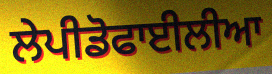
ਲੇਪੀਡੋਫਾਈਲੀਆ